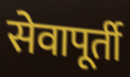
सेवापूर्ती